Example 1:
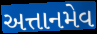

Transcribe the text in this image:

અત્તાનમેવ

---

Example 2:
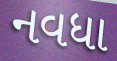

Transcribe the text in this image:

નવધા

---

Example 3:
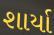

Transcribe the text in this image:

શાર્યા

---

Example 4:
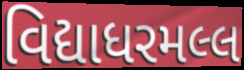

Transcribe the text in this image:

વિદ્યાધરમલ્લ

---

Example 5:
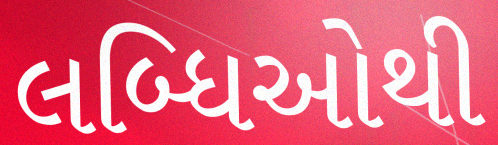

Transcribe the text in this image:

લબ્ધિઓથી